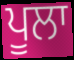
ਪੂਲਾ